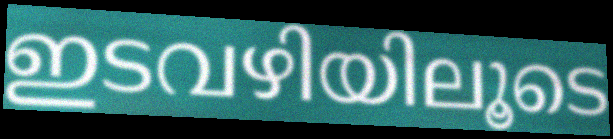
ഇടവഴിയിലൂടെ